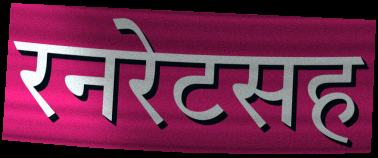
रनरेटसह